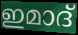
ഇമാദ്